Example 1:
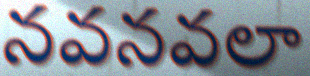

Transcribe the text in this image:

నవనవలా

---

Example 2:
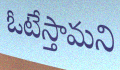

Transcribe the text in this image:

ఓటేస్తామని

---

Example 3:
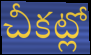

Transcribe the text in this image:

చీకట్లో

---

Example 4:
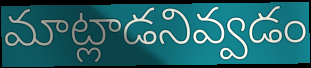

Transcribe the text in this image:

మాట్లాడనివ్వడం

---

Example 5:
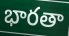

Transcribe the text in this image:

భారతా